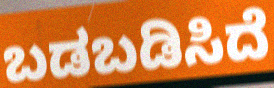
ಬಡಬಡಿಸಿದೆ